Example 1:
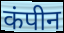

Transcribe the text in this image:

कंपीन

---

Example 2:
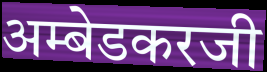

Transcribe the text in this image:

अम्बेडकरजी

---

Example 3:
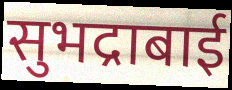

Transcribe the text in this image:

सुभद्राबाई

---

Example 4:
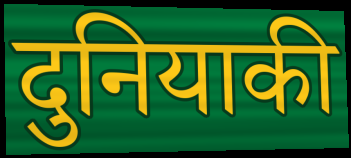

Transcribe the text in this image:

दुनियाकी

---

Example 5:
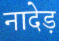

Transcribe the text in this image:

नादेड़